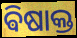
ଵିଷାକ୍ତ